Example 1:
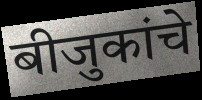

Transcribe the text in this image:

बीजुकांचे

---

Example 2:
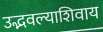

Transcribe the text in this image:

उद्भवल्याशिवाय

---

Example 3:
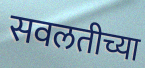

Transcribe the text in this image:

सवलतीच्या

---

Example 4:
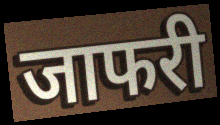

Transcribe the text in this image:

जाफरी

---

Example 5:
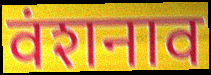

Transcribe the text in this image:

वंशनाव